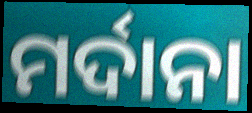
ମର୍ଦାନା